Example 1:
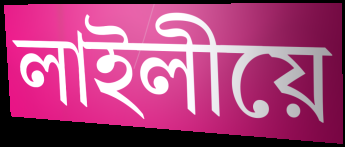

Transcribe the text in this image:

লাইলীয়ে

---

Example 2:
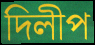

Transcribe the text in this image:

দিলীপ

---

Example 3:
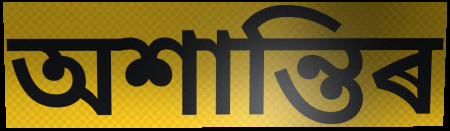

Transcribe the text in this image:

অশান্তিৰ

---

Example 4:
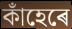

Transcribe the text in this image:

কাঁহেৰে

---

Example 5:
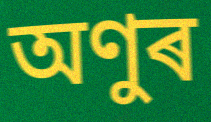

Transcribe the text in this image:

অণুৰ